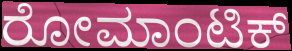
ರೋಮಾಂಟಿಕ್